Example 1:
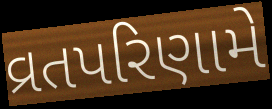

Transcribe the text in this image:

વ્રતપરિણામે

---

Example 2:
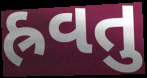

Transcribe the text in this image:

હ્રવતુ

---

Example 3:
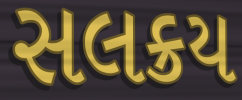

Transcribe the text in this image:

સલક્રય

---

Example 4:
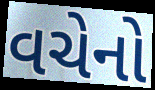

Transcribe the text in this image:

વચેનો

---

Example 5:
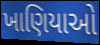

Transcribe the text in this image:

ખાણિયાઓ